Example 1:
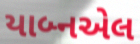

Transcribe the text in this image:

યાબ્નએલ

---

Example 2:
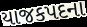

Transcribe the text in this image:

યાજકપદના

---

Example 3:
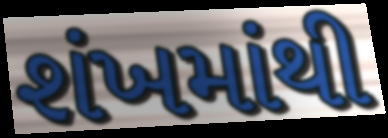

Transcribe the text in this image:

શંખમાંથી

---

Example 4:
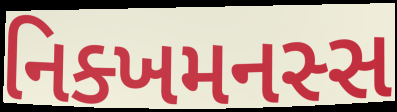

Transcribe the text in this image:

નિક્ખમનસ્સ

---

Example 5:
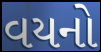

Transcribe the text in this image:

વયનો